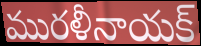
మురళీనాయక్